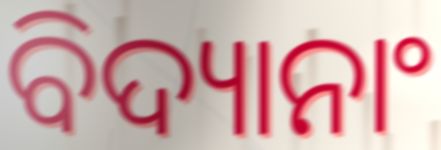
ବିଦ୍ୟାନାଂ